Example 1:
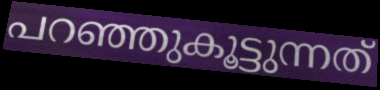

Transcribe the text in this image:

പറഞ്ഞുകൂട്ടുന്നത്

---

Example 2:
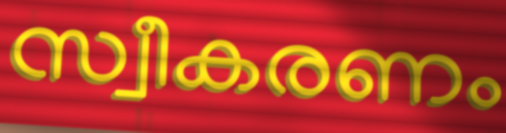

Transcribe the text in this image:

സ്വീകരണം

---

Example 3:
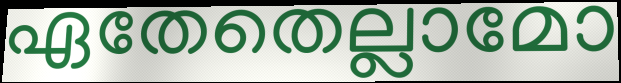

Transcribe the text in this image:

ഏതേതെല്ലാമോ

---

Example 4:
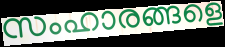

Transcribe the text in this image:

സംഹാരങ്ങളെ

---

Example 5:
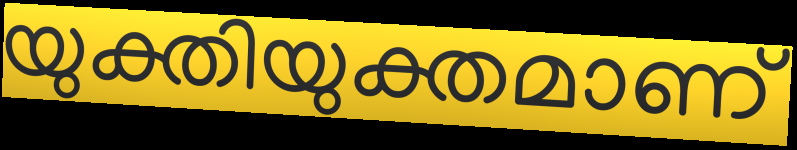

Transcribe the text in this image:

യുക്തിയുക്തമാണ്